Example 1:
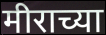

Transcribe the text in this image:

मीराच्या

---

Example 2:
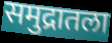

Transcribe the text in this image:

समुद्रातला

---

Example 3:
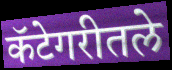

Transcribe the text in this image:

कॅटेगरीतले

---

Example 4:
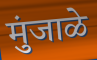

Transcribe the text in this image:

मुंजाळे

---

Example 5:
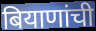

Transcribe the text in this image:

बियाणांची